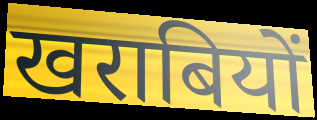
खराबियों